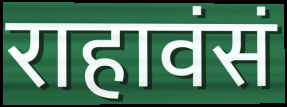
राहावंसं